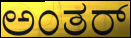
ಅಂತರ್